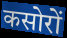
कसोरों